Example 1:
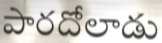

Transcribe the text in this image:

పారదోలాడు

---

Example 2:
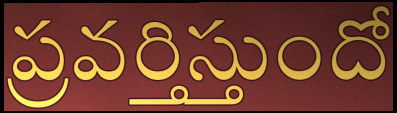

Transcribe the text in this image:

ప్రవర్తిస్తుందో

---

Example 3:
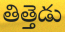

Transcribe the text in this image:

తిత్తెడు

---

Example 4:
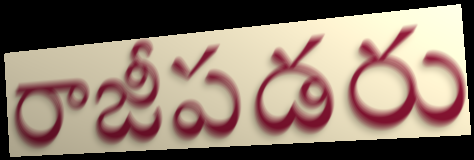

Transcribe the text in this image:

రాజీపడరు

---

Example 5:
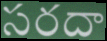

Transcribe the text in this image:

సరదా